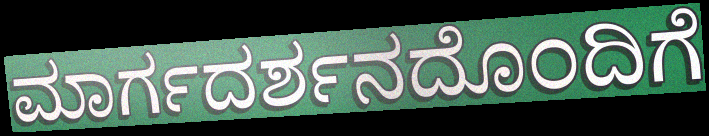
ಮಾರ್ಗದರ್ಶನದೊಂದಿಗೆ